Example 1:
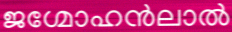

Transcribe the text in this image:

ജഗ്മോഹൻലാൽ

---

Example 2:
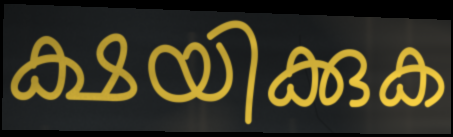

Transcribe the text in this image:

ക്ഷയിക്കുക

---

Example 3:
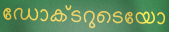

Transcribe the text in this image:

ഡോക്ടറുടെയോ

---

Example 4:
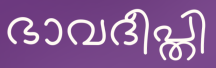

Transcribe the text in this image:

ഭാവദീപ്തി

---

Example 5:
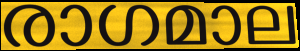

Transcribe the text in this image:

രാഗമാല